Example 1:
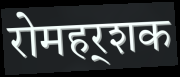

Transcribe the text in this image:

रोमहर्शक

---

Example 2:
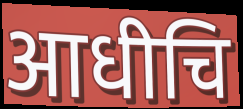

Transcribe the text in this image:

आधीचि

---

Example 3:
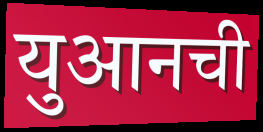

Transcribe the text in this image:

युआनची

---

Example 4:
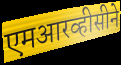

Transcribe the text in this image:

एमआरव्हीसीने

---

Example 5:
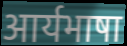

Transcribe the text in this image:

आर्यभाषा